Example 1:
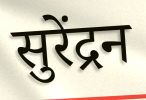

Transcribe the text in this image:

सुरेंद्रन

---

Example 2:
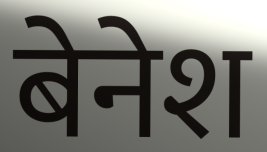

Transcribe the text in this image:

बेनेश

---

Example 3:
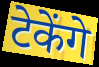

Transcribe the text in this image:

टेकेंगे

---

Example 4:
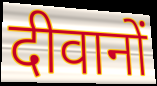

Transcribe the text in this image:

दीवानों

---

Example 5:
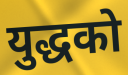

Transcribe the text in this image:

युद्धको